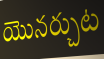
యొనర్చుట